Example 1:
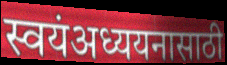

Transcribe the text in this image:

स्वयंअध्ययनासाठी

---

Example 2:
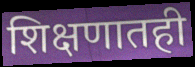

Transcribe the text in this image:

शिक्षणातही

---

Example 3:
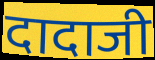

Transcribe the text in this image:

दादाजी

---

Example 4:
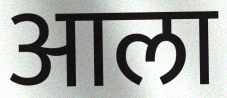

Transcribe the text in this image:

आला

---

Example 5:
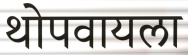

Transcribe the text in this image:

थोपवायला